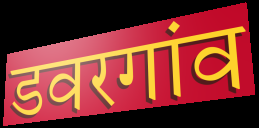
डवरगांव